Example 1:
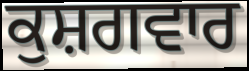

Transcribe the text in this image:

ਕੁਸ਼ਗਵਾਰ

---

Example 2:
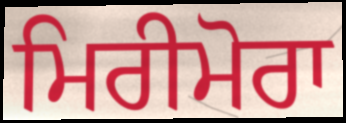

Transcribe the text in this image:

ਮਿਰੀਮੋਰਾ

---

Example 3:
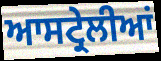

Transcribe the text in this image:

ਆਸਟ੍ਰੇਲੀਆਂ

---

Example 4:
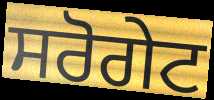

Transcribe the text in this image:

ਸਰੋਗੇਟ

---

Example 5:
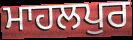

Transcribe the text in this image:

ਮਾਹਲਪੁਰ